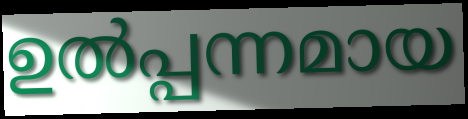
ഉൽപ്പന്നമായ